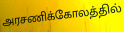
அரசணிக்கோலத்தில்